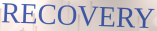
RECOVERY